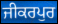
ਜੀਕਰਪੁਰ